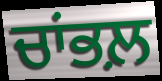
ਚਾਂਭਲ਼